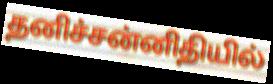
தனிச்சன்னிதியில்